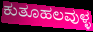
ಕುತೂಹಲವುಳ್ಳ